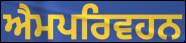
ਐਮਪਰਿਵਹਨ